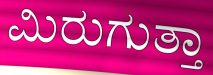
ಮಿರುಗುತ್ತಾ